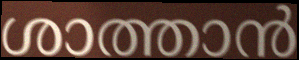
ശാത്താൻ